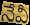
నేవీ